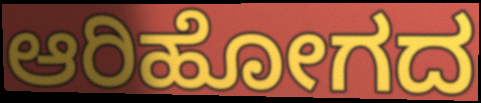
ಆರಿಹೋಗದ